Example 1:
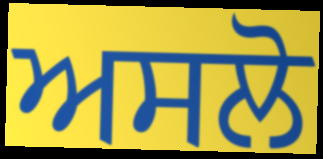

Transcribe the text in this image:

ਅਸਲੋ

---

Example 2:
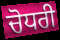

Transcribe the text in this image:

ਚੋਧਰੀ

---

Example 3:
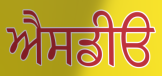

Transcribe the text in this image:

ਐਸਡੀੳ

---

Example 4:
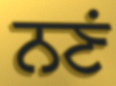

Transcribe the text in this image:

ਨਣਂ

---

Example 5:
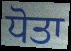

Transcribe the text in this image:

ਧੋਤਾ